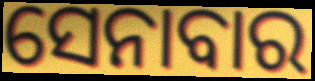
ସେନାବାର